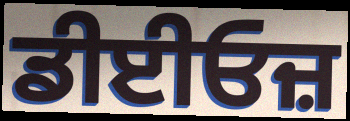
ਡੀਈਓਜ਼